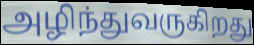
அழிந்துவருகிறது